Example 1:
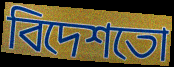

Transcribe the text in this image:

বিদেশতো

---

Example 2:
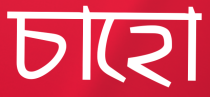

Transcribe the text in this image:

চাহো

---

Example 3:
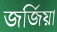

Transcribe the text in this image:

জৰ্জিয়া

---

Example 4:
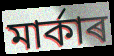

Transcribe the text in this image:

মাৰ্কাৰ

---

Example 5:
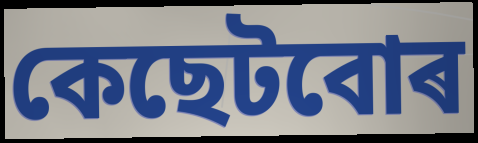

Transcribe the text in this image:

কেছেটবোৰ